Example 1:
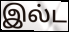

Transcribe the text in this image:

இல்ட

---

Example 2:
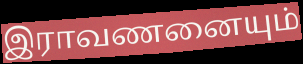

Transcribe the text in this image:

இராவணனையும்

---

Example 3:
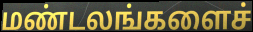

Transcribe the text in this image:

மண்டலங்களைச்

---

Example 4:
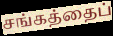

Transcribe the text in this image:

சங்கத்தைப்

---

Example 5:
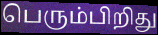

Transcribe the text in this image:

பெரும்பிறிது